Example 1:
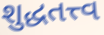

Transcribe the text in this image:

શુદ્ધતત્ત્વ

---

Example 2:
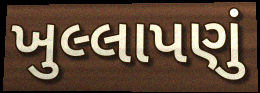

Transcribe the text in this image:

ખુલ્લાપણું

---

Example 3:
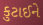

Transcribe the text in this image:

કુટાઈને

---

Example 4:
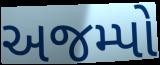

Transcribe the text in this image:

અજમ્પો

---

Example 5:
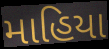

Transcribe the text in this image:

માહિયા